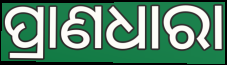
ପ୍ରାଣଧାରା